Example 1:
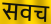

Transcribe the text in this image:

सवच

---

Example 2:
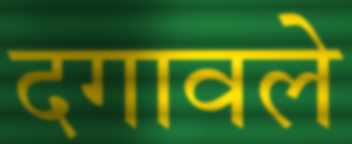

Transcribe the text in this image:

दगावले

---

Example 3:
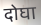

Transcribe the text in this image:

दोघा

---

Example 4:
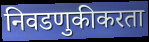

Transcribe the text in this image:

निवडणुकीकरता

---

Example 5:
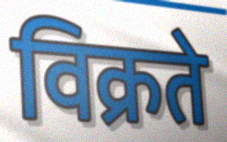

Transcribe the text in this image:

विक्रते